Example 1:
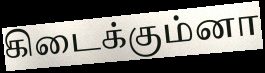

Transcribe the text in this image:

கிடைக்கும்னா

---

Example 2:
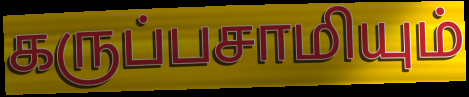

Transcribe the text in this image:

கருப்பசாமியும்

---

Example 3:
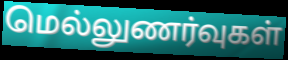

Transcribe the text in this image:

மெல்லுணர்வுகள்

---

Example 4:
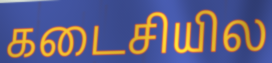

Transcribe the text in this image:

கடைசியில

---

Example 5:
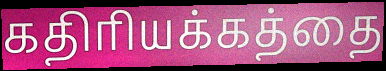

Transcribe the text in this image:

கதிரியக்கத்தை